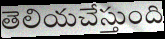
తెలియచేస్తుంది